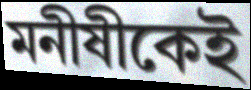
মনীষীকেই